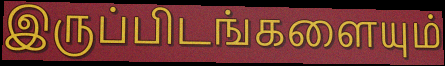
இருப்பிடங்களையும்